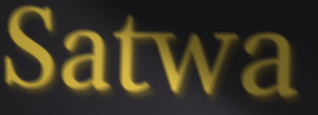
Satwa